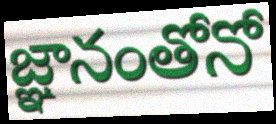
జ్ఞానంతోనో